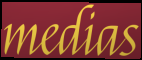
medias